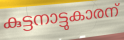
കുട്ടനാട്ടുകാരന്